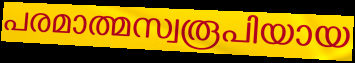
പരമാത്മസ്വരൂപിയായ